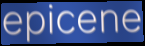
epicene